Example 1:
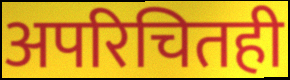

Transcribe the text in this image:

अपरिचितही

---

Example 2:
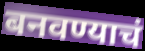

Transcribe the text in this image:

बनवण्याचं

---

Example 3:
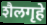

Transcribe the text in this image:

शैलगृहे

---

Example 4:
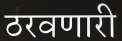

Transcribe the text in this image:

ठरवणारी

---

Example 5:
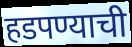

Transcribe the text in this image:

हडपण्याची